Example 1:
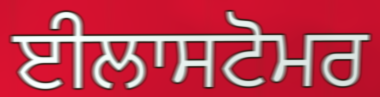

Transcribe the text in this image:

ਈਲਾਸਟੋਮਰ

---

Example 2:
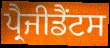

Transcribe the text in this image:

ਪ੍ਰੈਜੀਡੈਂਟਸ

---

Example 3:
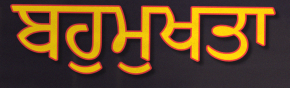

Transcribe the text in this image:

ਬਹੁਮੁਖਤਾ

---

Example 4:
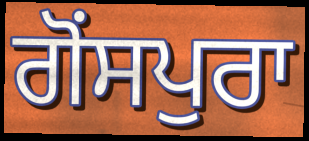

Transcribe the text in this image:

ਗੋਂਸਪੁਰਾ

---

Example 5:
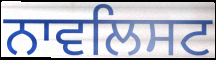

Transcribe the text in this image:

ਨਾਵਲਿਸਟ